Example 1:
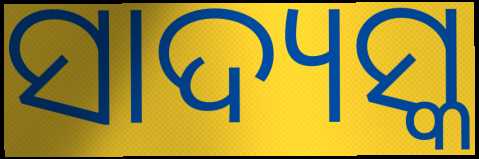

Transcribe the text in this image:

ସାଦ୍ୟସ୍କ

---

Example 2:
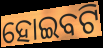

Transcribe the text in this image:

ହୋଇବଟି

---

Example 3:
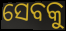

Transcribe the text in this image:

ସେବକୁ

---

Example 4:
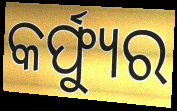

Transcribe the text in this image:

କର୍ଫ୍ୟୁର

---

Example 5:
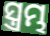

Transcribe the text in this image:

ସ୍ତ୍ରମ୍ଭ